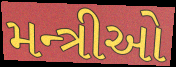
મન્ત્રીઓ